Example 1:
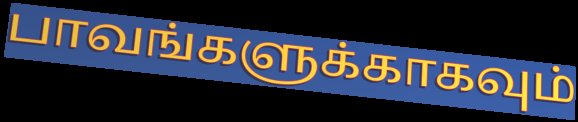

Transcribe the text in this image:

பாவங்களுக்காகவும்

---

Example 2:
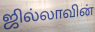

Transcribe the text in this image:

ஜில்லாவின்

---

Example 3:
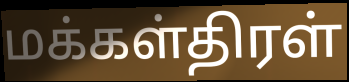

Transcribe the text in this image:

மக்கள்திரள்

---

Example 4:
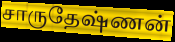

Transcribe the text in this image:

சாருதேஷ்ணன்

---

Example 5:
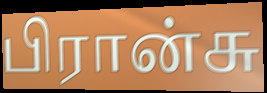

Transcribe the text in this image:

பிரான்சு